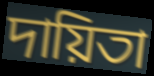
দায়িতা